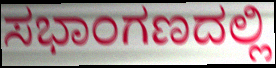
ಸಭಾಂಗಣದಲ್ಲಿ